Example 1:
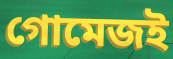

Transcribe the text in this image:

গোমেজই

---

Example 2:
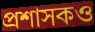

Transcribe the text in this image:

প্রশাসকও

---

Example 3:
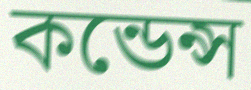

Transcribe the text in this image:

কন্ডেন্স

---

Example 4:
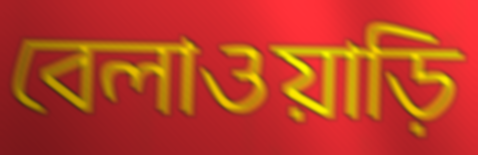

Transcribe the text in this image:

বেলাওয়াড়ি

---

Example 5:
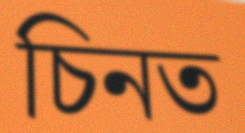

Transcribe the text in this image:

চিনত